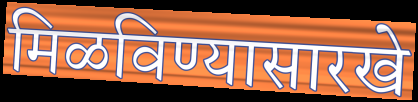
मिळविण्यासारखे